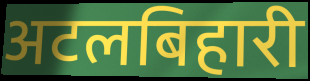
अटलबिहारी